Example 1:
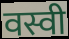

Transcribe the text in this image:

वस्वी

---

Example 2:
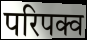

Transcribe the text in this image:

परिपक्व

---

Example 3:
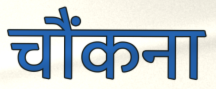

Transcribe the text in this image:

चौंकना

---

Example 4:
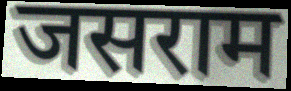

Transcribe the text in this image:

जसराम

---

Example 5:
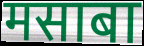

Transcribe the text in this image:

मसाबा